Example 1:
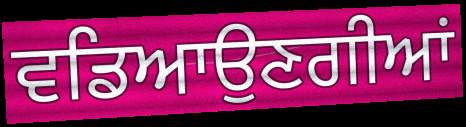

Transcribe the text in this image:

ਵਡਿਆਉਣਗੀਆਂ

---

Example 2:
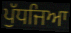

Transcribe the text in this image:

ਪੁੱਧਜਿਆ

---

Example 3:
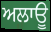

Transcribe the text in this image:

ਅਲਾਊ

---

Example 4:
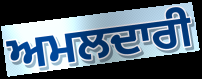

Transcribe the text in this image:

ਅਮਲਦਾਰੀ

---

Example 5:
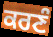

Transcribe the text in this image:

ਕਰਣੰ